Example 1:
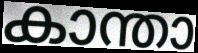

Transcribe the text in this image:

കാന്താ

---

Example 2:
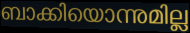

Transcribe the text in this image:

ബാക്കിയൊന്നുമില്ല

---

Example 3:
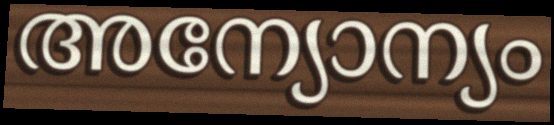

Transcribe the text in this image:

അന്യോന്യം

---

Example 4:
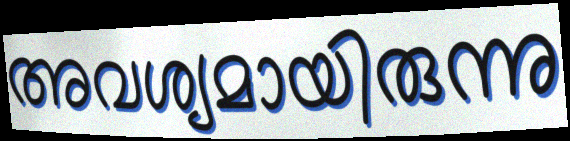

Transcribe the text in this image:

അവശ്യമായിരുന്നു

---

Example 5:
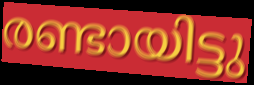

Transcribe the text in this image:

രണ്ടായിട്ടു